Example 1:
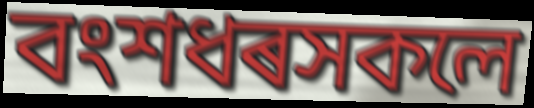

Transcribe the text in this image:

বংশধৰসকলে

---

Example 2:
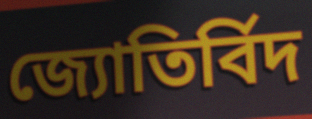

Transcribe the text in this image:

জ্যোতিৰ্বিদ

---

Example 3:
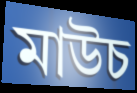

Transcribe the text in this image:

মাউচ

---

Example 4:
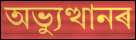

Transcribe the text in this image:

অভ্যুত্থানৰ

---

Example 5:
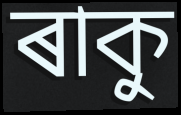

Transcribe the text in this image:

ৰাকু